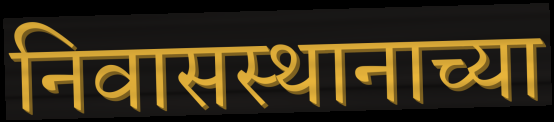
निवासस्थानाच्या